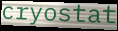
cryostat